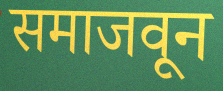
समाजवून